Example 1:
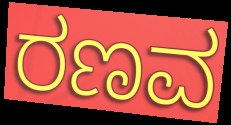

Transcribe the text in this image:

ರಣವ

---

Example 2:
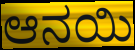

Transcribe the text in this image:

ಆನಯಿ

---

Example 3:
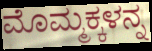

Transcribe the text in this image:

ಮೊಮ್ಮಕ್ಕಳನ್ನ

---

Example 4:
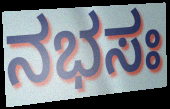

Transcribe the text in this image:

ನಭಸಃ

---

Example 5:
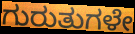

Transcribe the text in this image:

ಗುರುತುಗಳೇ